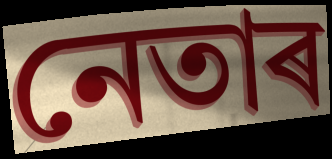
নেতাৰ